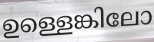
ഉള്ളെങ്കിലോ